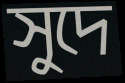
সুদে